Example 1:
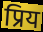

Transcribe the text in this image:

प्रिय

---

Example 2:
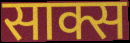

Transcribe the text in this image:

साक्स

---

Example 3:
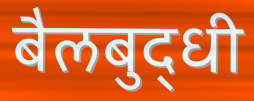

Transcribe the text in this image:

बैलबुद्धी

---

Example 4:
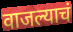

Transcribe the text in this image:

वाजल्याचं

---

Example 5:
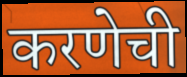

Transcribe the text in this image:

करणेची